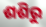
ଶଶିରୁ